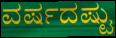
ವರ್ಷದಷ್ಟು